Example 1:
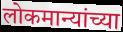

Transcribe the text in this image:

लोकमान्यांच्या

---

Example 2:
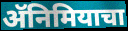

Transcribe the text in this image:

ॲनिमियाचा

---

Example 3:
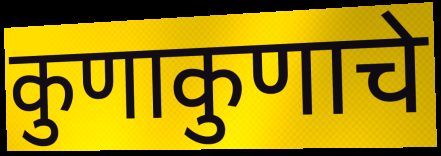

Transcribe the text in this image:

कुणाकुणाचे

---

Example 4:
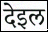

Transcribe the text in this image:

देइल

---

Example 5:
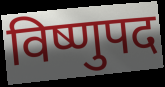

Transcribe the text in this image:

विष्णुपद